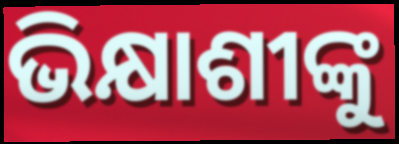
ଭିକ୍ଷାଶୀଙ୍କୁ